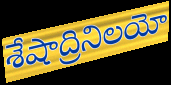
శేషాద్రినిలయో